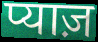
प्याज़